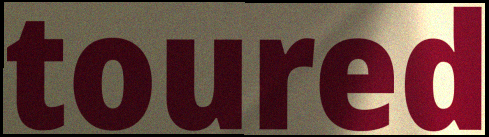
toured